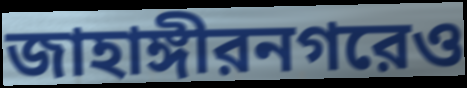
জাহাঙ্গীরনগরেও